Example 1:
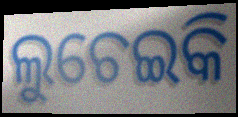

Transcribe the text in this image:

ଲୁଚେଇକି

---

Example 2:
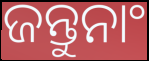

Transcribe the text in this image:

ଜନ୍ତୁନାଂ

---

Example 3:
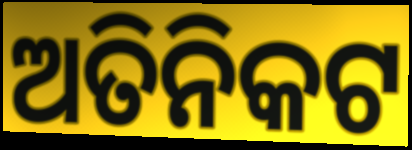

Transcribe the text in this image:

ଅତିନିକଟ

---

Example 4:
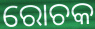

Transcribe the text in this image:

ରୋଚକ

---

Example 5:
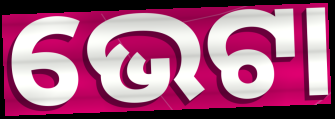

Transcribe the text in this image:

ଭେଟା